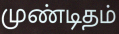
முண்டிதம்